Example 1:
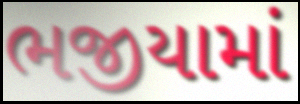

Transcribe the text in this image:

ભજીયામાં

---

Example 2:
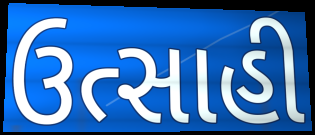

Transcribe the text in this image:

ઉત્સાહી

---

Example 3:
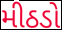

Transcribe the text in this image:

મીઠડો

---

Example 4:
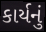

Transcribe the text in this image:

કાર્યનું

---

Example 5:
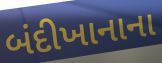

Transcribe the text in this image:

બંદીખાનાના